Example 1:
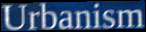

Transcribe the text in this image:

Urbanism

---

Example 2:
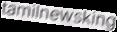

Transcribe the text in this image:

tamilnewsking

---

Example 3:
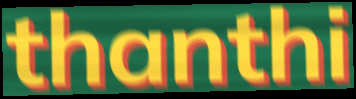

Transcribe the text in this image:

thanthi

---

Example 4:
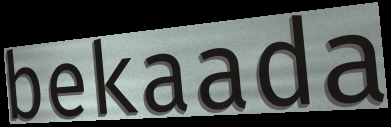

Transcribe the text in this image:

bekaada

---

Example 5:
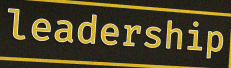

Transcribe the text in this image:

leadership